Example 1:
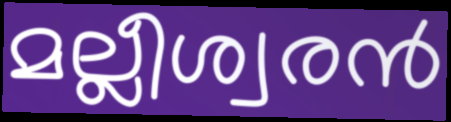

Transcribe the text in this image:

മല്ലീശ്വരൻ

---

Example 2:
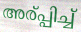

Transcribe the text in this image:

അര്പ്പിച്ച്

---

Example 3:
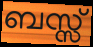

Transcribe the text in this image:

ബസ്സ്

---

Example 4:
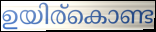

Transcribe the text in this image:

ഉയിര്കൊണ്ട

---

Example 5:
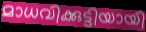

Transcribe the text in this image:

മാധവിക്കുട്ടിയായി